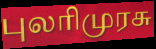
புலரிமுரசு